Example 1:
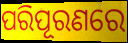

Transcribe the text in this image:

ପରିପୂରଣରେ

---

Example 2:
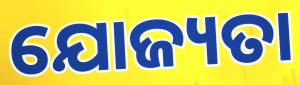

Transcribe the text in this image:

ଯୋଜ୍ୟତା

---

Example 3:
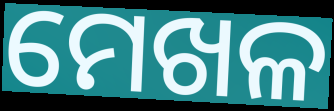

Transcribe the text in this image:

ମେଖଳ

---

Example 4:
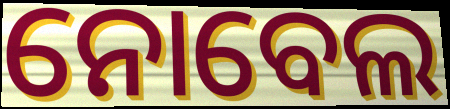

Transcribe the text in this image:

ନୋବେଲ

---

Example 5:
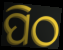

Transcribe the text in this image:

ପିଠ